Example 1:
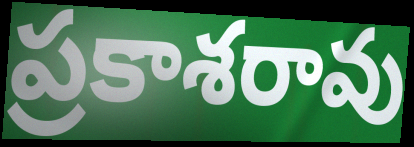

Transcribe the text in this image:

ప్రకాశరావు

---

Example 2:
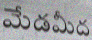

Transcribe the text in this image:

మేడమీద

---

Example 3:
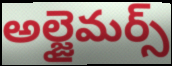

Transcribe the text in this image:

అల్జైమర్స్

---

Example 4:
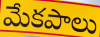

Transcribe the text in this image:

మేకపాలు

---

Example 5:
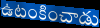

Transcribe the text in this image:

ఉటంకించాడు